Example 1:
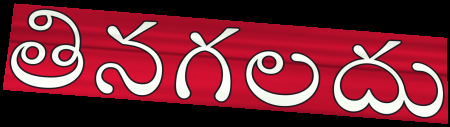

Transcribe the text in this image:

తినగలదు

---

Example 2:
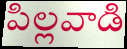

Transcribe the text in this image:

పిల్లవాడి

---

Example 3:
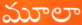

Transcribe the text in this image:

మూలా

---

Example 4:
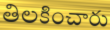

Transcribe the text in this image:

తిలకించారు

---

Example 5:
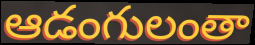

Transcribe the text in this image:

ఆడంగులంతా